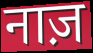
नाज़